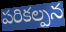
పరికల్పన